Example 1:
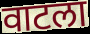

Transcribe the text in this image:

वाटला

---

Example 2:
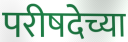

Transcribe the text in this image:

परीषदेच्या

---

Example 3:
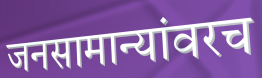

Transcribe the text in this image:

जनसामान्यांवरच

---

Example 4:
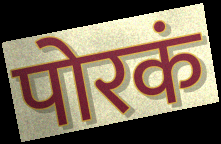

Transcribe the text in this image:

पोरकं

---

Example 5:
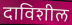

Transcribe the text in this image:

दाविशील